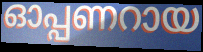
ഓപ്പണറായ